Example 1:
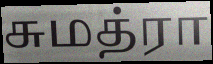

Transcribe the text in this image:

சுமத்ரா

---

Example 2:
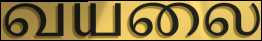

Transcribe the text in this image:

வயலை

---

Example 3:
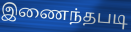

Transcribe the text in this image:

இணைந்தபடி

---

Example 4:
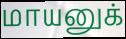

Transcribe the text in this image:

மாயனுக்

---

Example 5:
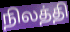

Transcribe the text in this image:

நிலத்தி